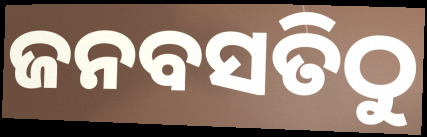
ଜନବସତିଠୁ